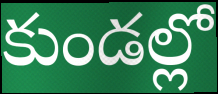
కుండల్లో